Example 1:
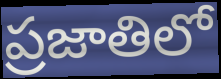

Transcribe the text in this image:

ప్రజాతిలో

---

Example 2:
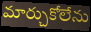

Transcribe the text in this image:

మార్చుకోలేను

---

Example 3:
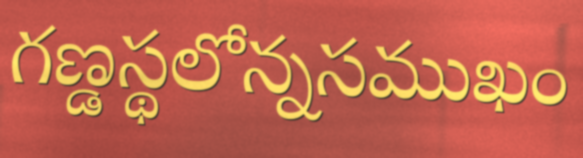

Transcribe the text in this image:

గణ్డస్థలోన్నసముఖం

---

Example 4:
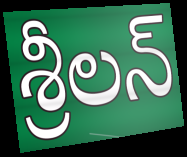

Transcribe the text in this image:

శ్రీలన్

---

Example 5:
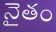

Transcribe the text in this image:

నైతం